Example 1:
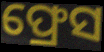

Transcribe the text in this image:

ଫ୍ରେସ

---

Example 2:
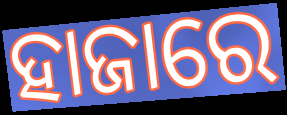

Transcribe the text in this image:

ହାଜାରେ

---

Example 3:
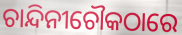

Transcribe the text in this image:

ଚାନ୍ଦିନୀଚୌକଠାରେ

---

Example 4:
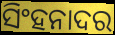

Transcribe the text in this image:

ସିଂହନାଦର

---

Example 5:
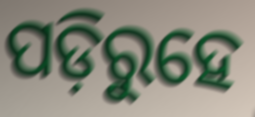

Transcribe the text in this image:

ପଡ଼ିରୁହେ